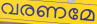
വരണമേ